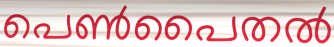
പെൺപൈതൽ